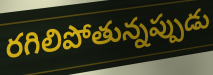
రగిలిపోతున్నప్పుడు